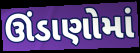
ઊંડાણોમાં